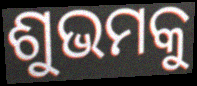
ଶୁଭମକୁ